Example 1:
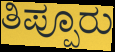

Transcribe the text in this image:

ತಿಪ್ಪೂರು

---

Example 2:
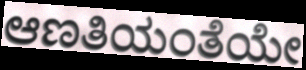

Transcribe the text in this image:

ಆಣತಿಯಂತೆಯೇ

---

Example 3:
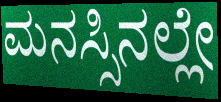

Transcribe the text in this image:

ಮನಸ್ಸಿನಲ್ಲೇ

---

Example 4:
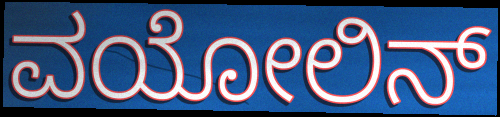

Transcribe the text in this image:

ವಯೋಲಿನ್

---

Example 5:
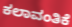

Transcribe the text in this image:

ಕಲಾವಂತಿಕೆ